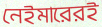
নেইমারেরই